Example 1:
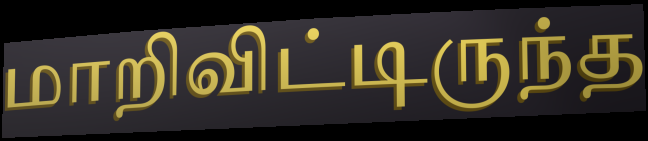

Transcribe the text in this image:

மாறிவிட்டிருந்த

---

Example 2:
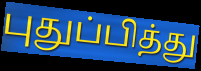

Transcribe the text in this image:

புதுப்பித்து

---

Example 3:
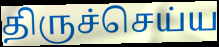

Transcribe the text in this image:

திருச்செய்ய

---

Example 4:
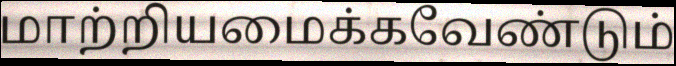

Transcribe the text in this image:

மாற்றியமைக்கவேண்டும்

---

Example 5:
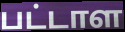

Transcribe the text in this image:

பட்டாள